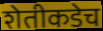
शेतीकडेच